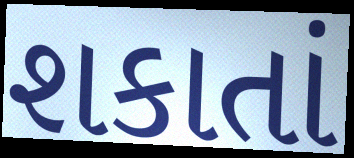
શકાતાં